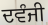
ਦਵੰਜੀ